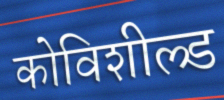
कोविशील्ड